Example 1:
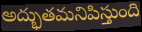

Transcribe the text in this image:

అద్భుతమనిపిస్తుంది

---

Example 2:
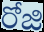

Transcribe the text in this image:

రోజి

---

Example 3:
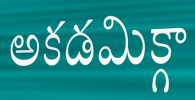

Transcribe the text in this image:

అకడమిక్గా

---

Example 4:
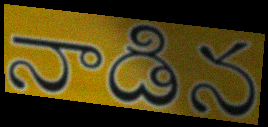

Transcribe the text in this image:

నాడిన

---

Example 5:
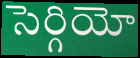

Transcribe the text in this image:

సెర్గియో